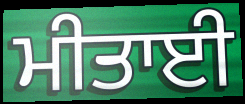
ਮੀਤਾਈ